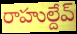
రాహుల్దేవ్